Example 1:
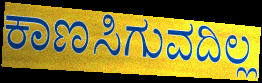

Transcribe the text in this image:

ಕಾಣಸಿಗುವದಿಲ್ಲ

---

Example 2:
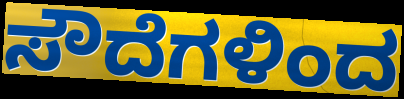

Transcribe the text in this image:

ಸೌದೆಗಳಿಂದ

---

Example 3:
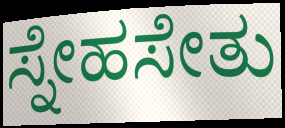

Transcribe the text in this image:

ಸ್ನೇಹಸೇತು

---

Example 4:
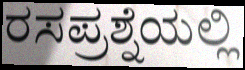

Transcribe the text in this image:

ರಸಪ್ರಶ್ನೆಯಲ್ಲಿ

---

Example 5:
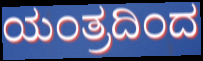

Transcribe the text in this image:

ಯಂತ್ರದಿಂದ